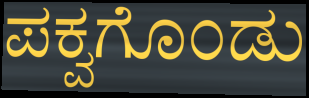
ಪಕ್ವಗೊಂಡು